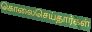
கொலைசெய்தார்கள்